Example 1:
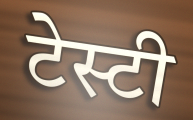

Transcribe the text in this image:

टेस्‍टी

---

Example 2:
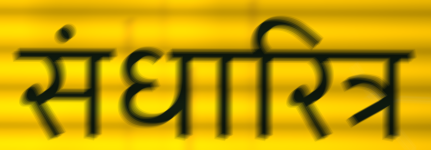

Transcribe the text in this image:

संधारित्र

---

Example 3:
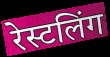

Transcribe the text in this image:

रेस्टलिंग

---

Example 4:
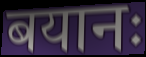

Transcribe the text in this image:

बयानः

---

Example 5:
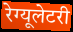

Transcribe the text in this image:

रेग्यूलेटरी